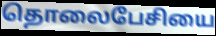
தொலைபேசியை